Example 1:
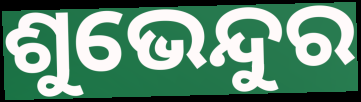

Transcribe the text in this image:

ଶୁଭେନ୍ଦୁର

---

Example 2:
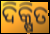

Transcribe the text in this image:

ଦିକ୍ଷିତ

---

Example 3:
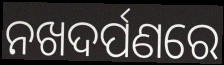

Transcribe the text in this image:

ନଖଦର୍ପଣରେ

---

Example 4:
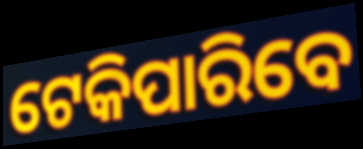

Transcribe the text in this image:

ଟେକିପାରିବେ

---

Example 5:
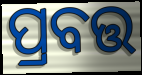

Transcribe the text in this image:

ପ୍ରବତ୍ତ